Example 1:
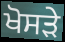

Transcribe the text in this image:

ਖੋਸੜੇ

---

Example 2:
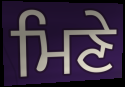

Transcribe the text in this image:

ਮਿਣੇ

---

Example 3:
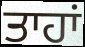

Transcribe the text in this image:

ਤਾਹਾਂ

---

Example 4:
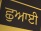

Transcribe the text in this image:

ਛੁਆਈ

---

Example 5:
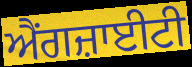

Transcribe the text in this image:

ਐਂਗਜ਼ਾਈਟੀ